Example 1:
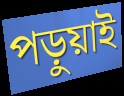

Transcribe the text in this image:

পড়ুয়াই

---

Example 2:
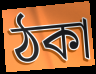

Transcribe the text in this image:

ঠকা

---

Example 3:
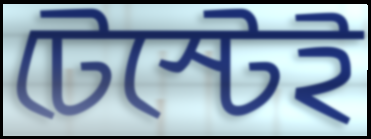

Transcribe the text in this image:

টেস্টেই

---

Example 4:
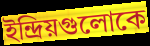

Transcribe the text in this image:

ইন্দ্রিয়গুলোকে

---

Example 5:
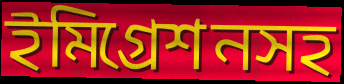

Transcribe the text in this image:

ইমিগ্রেশনসহ